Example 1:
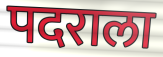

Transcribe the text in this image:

पदराला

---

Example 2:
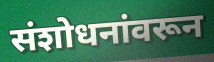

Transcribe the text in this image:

संशोधनांवरून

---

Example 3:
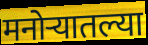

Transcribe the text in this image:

मनोर्‍यातल्या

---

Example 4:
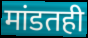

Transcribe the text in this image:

मांडतही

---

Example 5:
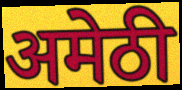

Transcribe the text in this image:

अमेठी